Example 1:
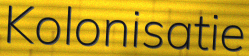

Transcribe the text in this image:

Kolonisatie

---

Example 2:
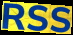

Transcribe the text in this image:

RSS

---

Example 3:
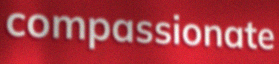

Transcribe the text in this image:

compassionate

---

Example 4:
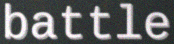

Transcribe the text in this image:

battle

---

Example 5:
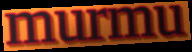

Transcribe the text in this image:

murmu